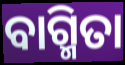
ବାଗ୍ମିତା